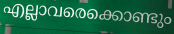
എല്ലാവരെക്കൊണ്ടും